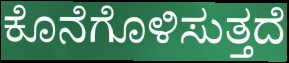
ಕೊನೆಗೊಳಿಸುತ್ತದೆ